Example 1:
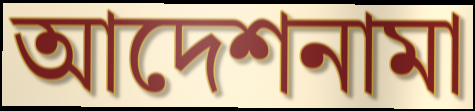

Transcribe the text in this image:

আদেশনামা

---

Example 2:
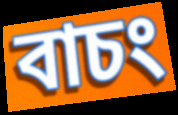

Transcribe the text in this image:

বাচং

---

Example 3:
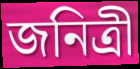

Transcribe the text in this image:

জনিত্রী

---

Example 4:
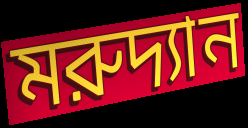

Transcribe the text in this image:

মরুদ্যান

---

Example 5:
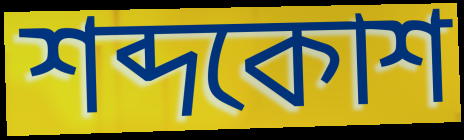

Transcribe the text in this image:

শব্দকোশ